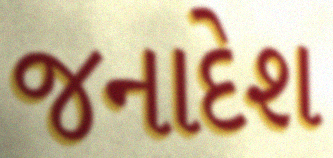
જનાદેશ